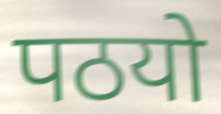
पठयो